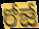
రోజే